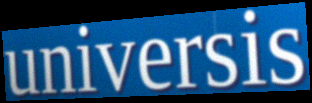
universis